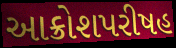
આક્રોશપરીષહ